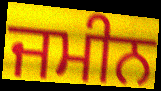
ਜਮੀਨ